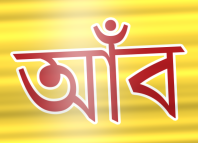
আঁব